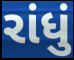
રાંધું